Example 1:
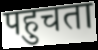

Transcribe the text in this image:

पहुचता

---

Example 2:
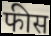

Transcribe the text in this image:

फीस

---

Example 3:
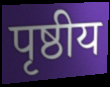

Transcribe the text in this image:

पृष्ठीय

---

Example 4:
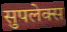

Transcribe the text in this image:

सुपलेक्स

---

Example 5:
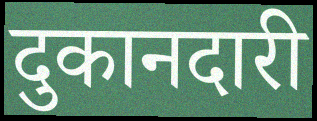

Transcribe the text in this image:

दुकानदारी